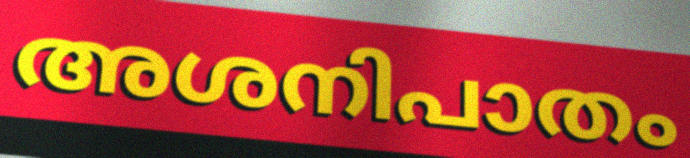
അശനിപാതം